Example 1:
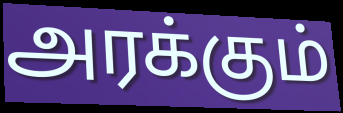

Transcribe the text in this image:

அரக்கும்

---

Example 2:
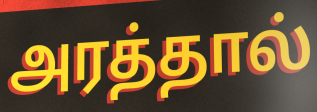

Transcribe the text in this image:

அரத்தால்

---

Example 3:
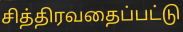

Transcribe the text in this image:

சித்திரவதைப்பட்டு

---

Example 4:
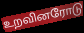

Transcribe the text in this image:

உறவினரோடு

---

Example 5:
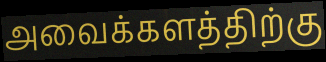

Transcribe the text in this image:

அவைக்களத்திற்கு